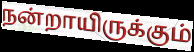
நன்றாயிருக்கும்